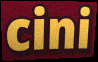
cini